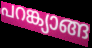
പറങ്ക്യാങ്ങ